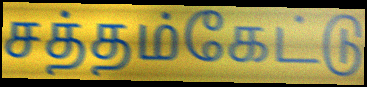
சத்தம்கேட்டு